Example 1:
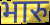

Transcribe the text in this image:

भारु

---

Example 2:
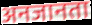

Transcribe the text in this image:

अनजानता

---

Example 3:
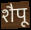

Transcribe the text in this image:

शैपू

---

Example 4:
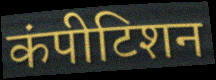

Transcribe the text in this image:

कंपीटिशन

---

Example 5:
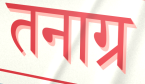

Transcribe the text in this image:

तनाग्र